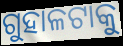
ଗୁହାଳଟାକୁ